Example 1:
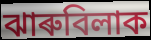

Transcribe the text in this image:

ঝাৰুবিলাক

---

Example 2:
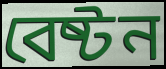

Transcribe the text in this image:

বেষ্টন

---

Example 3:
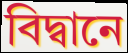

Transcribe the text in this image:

বিদ্বানে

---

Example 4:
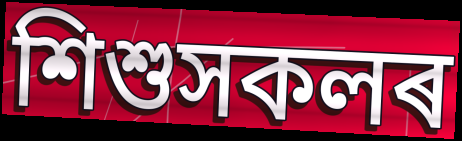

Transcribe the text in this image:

শিশুসকলৰ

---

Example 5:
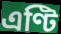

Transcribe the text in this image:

এণ্টি